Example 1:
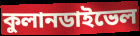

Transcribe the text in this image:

কুলানডাইভেল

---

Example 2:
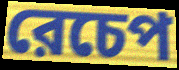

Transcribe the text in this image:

রেচেপ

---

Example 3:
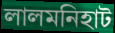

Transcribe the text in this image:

লালমনিহাট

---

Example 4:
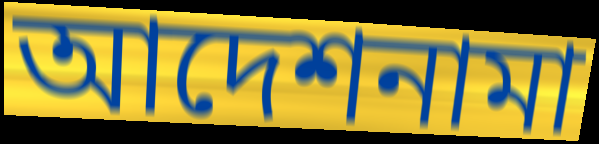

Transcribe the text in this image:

আদেশনামা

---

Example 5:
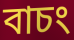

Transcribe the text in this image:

বাচং